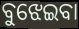
ବୁଝେଇବା